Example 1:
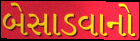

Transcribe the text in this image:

બેસાડવાનો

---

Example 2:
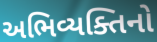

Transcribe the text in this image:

અભિવ્યક્તિનો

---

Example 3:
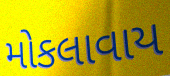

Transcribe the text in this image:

મોકલાવાય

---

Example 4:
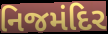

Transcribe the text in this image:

નિજમંદિર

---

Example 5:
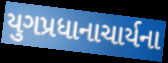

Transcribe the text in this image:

યુગપ્રધાનાચાર્યના